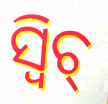
ସ୍ଵିଚ୍